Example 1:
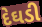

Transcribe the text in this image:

દેઘડી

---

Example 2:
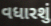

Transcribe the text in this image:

વધારશું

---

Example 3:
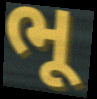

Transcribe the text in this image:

ભૂ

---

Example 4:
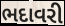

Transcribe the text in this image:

ભદાવરી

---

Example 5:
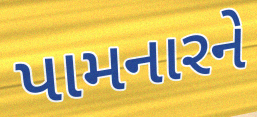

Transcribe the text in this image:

પામનારને